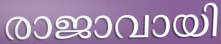
രാജാവായി